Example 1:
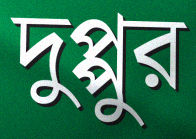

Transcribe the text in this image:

দুপ্পুর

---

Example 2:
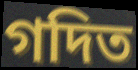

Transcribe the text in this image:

গদিত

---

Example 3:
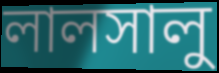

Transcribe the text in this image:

লালসালু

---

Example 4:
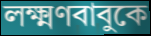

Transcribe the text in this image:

লক্ষ্মণবাবুকে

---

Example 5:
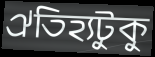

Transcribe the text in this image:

ঐতিহ্যটুকু